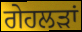
ਗੇਹਲੜਾਂ